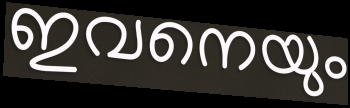
ഇവനെയും